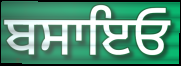
ਬਸਾਇਓ